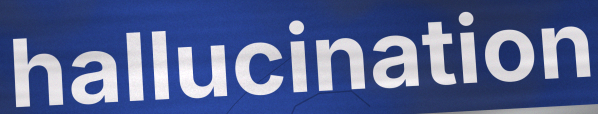
hallucination